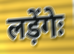
लड़ेंगेः